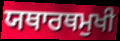
ਯਥਾਰਥਮੁਖੀ